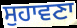
ਸੁਹਾਵਣਾ